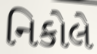
નિકોલે